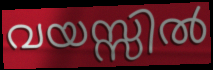
വയസ്സിൽ